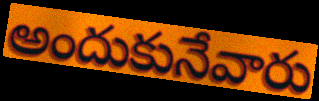
అందుకునేవారు